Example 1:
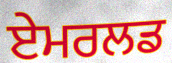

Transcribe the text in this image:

ਏਮਰਲਡ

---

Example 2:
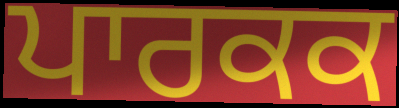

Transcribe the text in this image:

ਪਾਰਕਕ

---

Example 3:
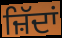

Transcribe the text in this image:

ਜ਼ਿੱਦਾਂ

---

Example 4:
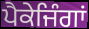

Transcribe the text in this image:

ਪੈਕੇਜਿੰਗਾਂ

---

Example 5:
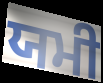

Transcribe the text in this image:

ਯਮੀ